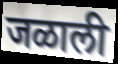
जळाली